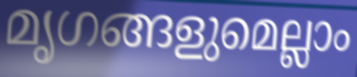
മൃഗങ്ങളുമെല്ലാം